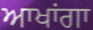
ਆਖਾਂਗਾ